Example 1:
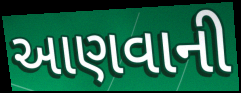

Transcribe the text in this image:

આણવાની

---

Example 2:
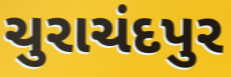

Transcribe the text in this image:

ચુરાચંદપુર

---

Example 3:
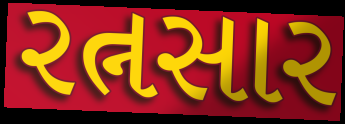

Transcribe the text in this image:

રત્નસાર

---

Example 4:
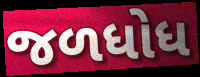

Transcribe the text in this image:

જળધોધ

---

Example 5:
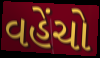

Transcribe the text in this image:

વહેંચો